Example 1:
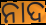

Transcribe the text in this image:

ନାଦ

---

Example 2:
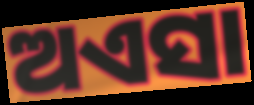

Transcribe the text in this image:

ଅଏସା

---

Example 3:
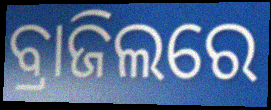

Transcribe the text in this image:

ବ୍ରାଜିଲରେ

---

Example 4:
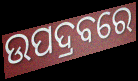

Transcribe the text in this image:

ଉପଦ୍ରବରେ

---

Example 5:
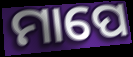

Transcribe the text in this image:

ମାପେ